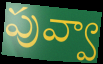
పువ్వా